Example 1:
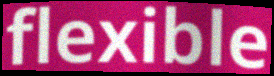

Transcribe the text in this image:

flexible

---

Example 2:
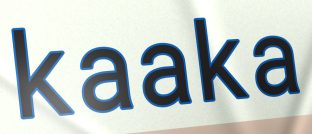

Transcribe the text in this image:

kaaka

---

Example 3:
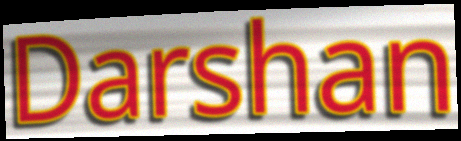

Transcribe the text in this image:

Darshan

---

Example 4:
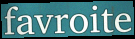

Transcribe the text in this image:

favroite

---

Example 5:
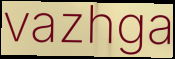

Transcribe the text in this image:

vazhga